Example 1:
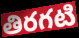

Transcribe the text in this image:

తిరగటి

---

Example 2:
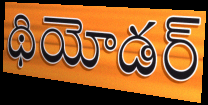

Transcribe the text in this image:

థియోడర్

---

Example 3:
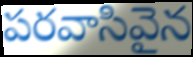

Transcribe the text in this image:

పరవాసివైన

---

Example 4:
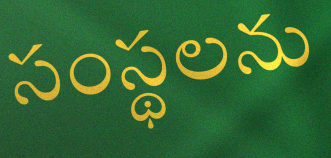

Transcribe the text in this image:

సంస్థలను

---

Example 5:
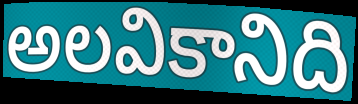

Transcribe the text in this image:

అలవికానిది